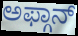
ಅಫ್ಗಾನ್